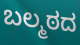
ಬಲ್ಮಠದ